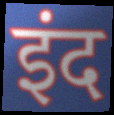
इंद